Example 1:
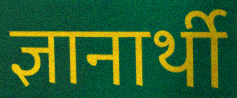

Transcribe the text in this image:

ज्ञानार्थी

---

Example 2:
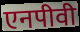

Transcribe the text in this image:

एनपीवी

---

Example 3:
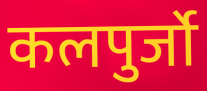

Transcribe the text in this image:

कलपुर्जो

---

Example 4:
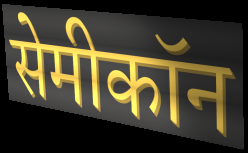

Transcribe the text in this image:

सेमीकॉन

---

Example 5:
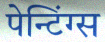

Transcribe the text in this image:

पेन्टिंग्स